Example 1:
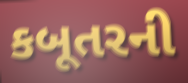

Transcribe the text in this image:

કબૂતરની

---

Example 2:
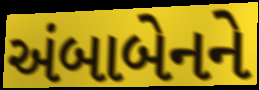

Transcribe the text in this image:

અંબાબેનને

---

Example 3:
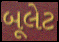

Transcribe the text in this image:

બૂલેટ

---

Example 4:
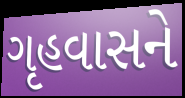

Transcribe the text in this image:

ગૃહવાસને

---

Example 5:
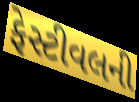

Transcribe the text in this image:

ફેસ્ટીવલની